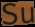
Su